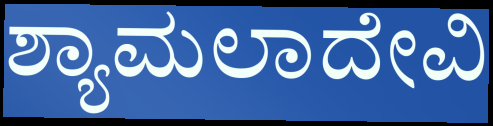
ಶ್ಯಾಮಲಾದೇವಿ